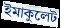
ইমাকুলেট